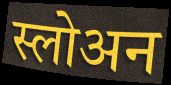
स्लोअन